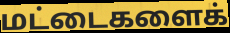
மட்டைகளைக்